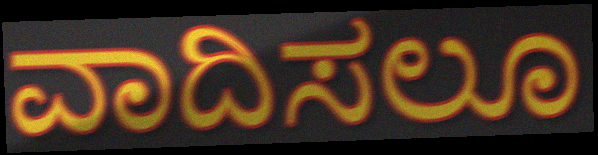
ವಾದಿಸಲೂ